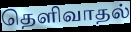
தெளிவாதல்